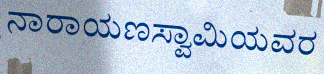
ನಾರಾಯಣಸ್ವಾಮಿಯವರ